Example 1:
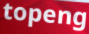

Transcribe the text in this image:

topeng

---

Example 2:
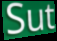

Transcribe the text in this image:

Sut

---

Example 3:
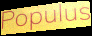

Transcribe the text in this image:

Populus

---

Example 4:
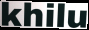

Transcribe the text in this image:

khilu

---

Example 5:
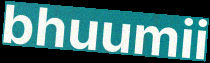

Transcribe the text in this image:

bhuumii